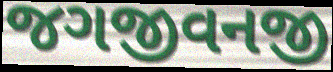
જગજીવનજી